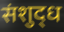
संशुद्ध